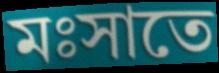
মঃসাতে